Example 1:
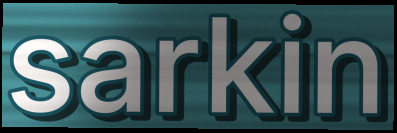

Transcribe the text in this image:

sarkin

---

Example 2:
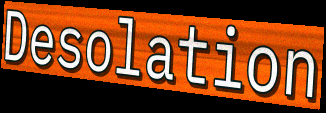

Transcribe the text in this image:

Desolation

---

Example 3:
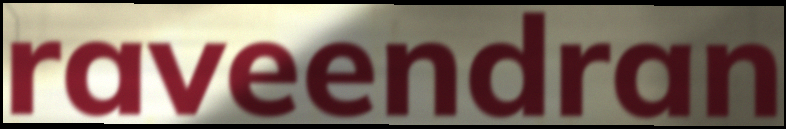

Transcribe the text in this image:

raveendran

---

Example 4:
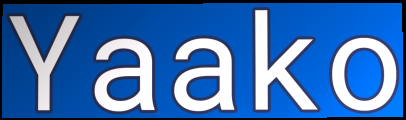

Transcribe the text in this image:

Yaako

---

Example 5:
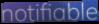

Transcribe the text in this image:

notifiable